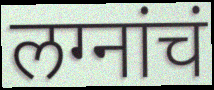
लग्नांचं